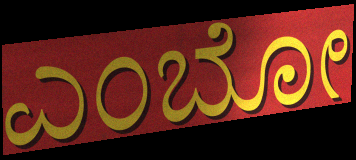
ಎಂಬೋ